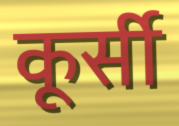
कूर्सी